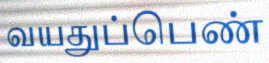
வயதுப்பெண்